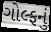
ગોલ્ફનું